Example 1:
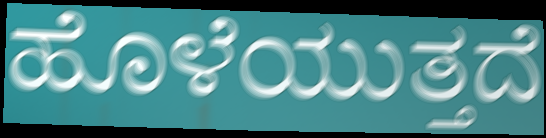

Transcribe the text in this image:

ಹೊಳೆಯುತ್ತದೆ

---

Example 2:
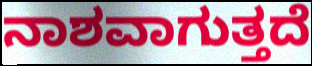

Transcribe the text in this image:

ನಾಶವಾಗುತ್ತದೆ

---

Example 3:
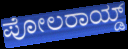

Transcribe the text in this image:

ಪೋಲರಾಯ್ಡ್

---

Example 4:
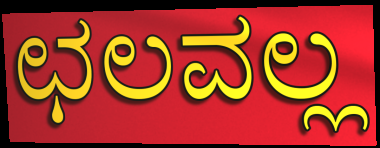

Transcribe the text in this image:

ಛಲವಲ್ಲ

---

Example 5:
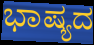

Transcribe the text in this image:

ಭಾಷ್ಯದ